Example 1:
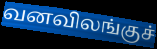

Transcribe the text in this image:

வனவிலங்குச்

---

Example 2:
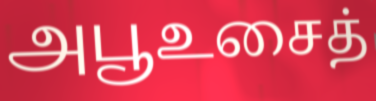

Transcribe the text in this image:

அபூஉசைத்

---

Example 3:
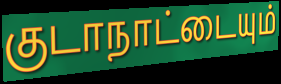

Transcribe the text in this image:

குடாநாட்டையும்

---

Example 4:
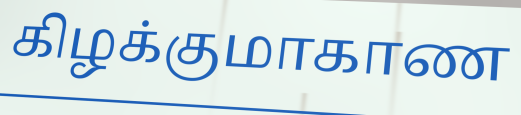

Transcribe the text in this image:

கிழக்குமாகாண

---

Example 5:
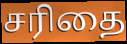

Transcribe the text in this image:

சரிதை